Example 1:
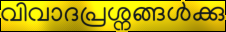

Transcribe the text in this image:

വിവാദപ്രശ്നങ്ങൾക്കു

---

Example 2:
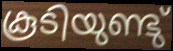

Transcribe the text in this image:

കൂടിയുണ്ടു്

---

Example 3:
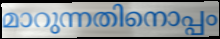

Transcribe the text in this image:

മാറുന്നതിനൊപ്പം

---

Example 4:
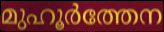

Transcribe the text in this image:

മുഹൂർത്തേന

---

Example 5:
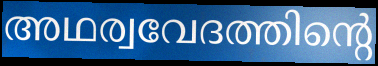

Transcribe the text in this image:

അഥര്വവേദത്തിന്റെ